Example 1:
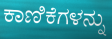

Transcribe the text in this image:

ಕಾಣಿಕೆಗಳನ್ನು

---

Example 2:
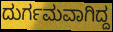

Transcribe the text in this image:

ದುರ್ಗಮವಾಗಿದ್ದ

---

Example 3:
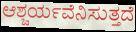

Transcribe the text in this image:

ಆಶ್ಚರ್ಯವೆನಿಸುತ್ತದೆ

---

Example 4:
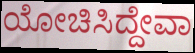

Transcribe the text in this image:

ಯೋಚಿಸಿದ್ದೇವಾ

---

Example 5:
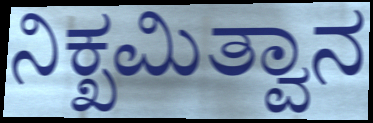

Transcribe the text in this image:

ನಿಕ್ಖಮಿತ್ವಾನ